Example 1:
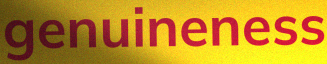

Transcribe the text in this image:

genuineness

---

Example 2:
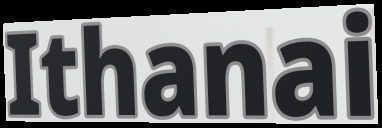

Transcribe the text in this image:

Ithanai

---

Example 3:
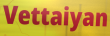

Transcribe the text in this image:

Vettaiyan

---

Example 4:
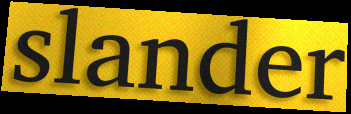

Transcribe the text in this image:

slander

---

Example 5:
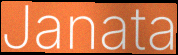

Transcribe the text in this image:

Janata